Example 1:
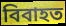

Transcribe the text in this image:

বিবাহত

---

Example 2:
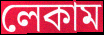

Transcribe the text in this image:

লেকাম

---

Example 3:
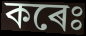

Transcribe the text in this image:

কৰেঃ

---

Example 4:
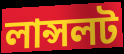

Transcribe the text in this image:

লান্সলট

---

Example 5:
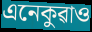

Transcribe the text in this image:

এনেকুৱাও